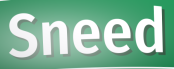
Sneed